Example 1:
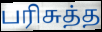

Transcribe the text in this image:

பரிசுத்த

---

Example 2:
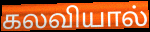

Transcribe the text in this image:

கலவியால்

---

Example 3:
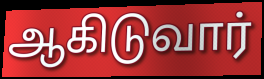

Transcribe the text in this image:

ஆகிடுவார்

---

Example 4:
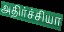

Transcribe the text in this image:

அதிர்ச்சியா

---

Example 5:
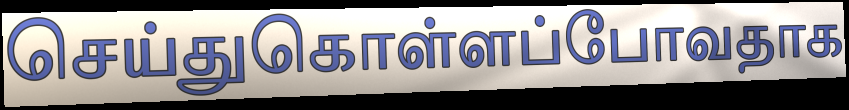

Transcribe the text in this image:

செய்துகொள்ளப்போவதாக